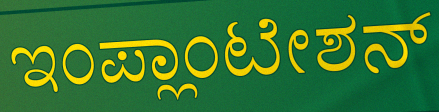
ಇಂಪ್ಲಾಂಟೇಶನ್